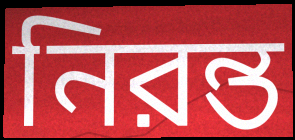
নিরন্ত